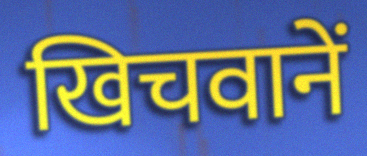
खिचवानें